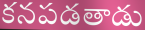
కనపడతాడు